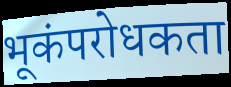
भूकंपरोधकता